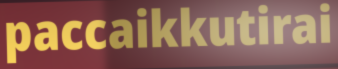
paccaikkutirai